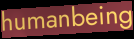
humanbeing